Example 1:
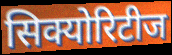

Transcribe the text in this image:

सिक्योरिटीज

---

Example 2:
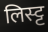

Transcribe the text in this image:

लिस्ट्ट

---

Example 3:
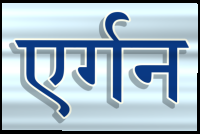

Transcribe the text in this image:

एर्गन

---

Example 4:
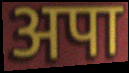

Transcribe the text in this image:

अपा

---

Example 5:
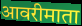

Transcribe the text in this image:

आवरीमाता